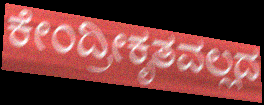
ಕೇಂದ್ರೀಕೃತವಲ್ಲದ